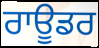
ਰਾਊਡਰ